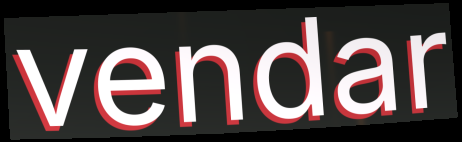
vendar